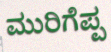
ಮುರಿಗೆಪ್ಪ